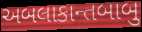
અબલાકાન્તબાબુ